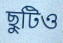
ছুটিও